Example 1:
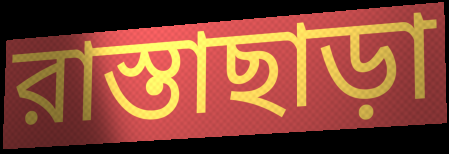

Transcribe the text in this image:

রাস্তাছাড়া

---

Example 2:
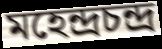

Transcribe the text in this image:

মহেন্দ্রচন্দ্র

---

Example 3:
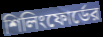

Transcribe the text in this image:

শিলিংফোর্ডের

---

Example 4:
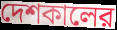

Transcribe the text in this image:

দেশকালের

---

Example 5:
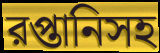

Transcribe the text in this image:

রপ্তানিসহ